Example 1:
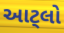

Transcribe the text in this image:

આટ્લો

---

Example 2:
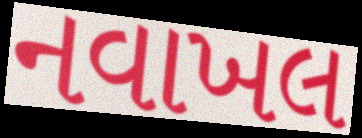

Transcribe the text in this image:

નવાખલ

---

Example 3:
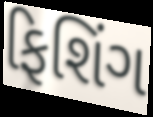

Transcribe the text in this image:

ફિશિંગ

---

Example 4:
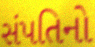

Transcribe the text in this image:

સંપતિનો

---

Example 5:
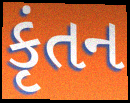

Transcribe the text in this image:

કૃંતન